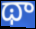
థా